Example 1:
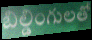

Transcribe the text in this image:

బిల్డింగులతో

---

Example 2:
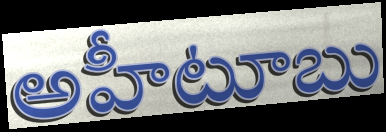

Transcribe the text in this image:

అహీటూబు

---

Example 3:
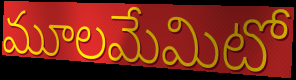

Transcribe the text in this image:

మూలమేమిటో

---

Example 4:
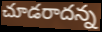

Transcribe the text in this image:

చూడరాదన్న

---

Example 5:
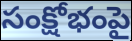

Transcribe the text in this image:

సంక్షోభంపై